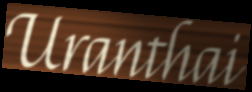
Uranthai